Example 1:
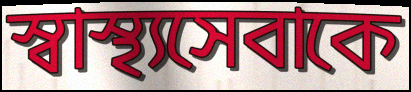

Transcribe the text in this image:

স্বাস্থ্যসেবাকে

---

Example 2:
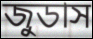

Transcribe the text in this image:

জুডাস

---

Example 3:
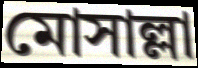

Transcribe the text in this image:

মোসাল্লা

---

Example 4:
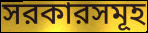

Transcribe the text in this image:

সরকারসমূহ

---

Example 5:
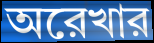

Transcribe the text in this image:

অরেখার